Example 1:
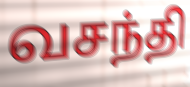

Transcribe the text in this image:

வசந்தி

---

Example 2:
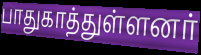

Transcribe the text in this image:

பாதுகாத்துள்ளனர்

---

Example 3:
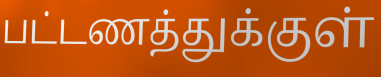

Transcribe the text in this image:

பட்டணத்துக்குள்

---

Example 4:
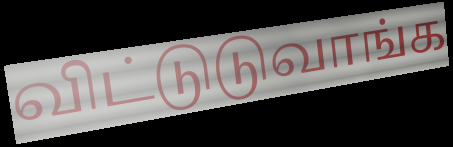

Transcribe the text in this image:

விட்டுடுவாங்க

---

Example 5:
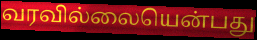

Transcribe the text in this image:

வரவில்லையென்பது